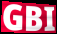
GBI